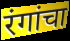
रंगांचा